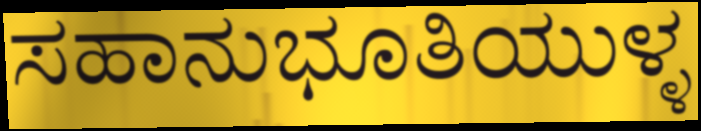
ಸಹಾನುಭೂತಿಯುಳ್ಳ